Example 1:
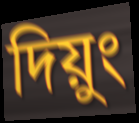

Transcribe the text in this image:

দিয়ুং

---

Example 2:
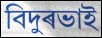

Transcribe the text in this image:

বিদুৰভাই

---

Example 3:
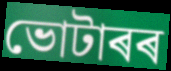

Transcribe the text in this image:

ভোটাৰৰ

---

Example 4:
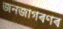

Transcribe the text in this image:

জনজাগৰণৰ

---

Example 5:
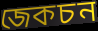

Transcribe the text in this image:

জেকচন